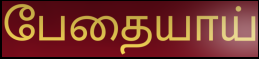
பேதையாய்